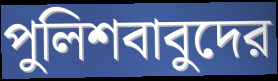
পুলিশবাবুদের